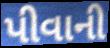
પીવાની